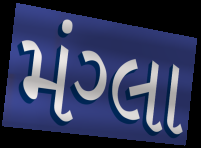
મંગ્લા